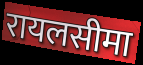
रायलसीमा